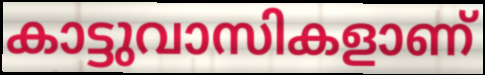
കാട്ടുവാസികളാണ്